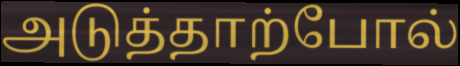
அடுத்தாற்போல்